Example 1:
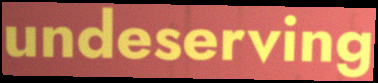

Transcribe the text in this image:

undeserving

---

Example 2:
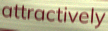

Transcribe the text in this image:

attractively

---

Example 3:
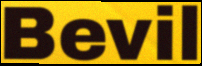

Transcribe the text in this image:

Bevil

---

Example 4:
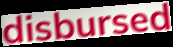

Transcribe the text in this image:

disbursed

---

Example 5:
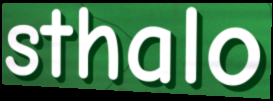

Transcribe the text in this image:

sthalo